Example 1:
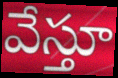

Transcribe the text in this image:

వేస్తూ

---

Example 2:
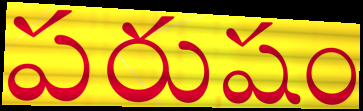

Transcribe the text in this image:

పరుషం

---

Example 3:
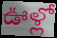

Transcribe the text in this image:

ఊళ్లో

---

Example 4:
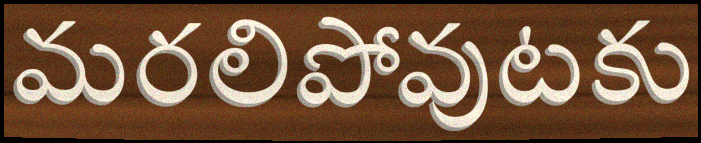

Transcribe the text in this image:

మరలిపోవుటకు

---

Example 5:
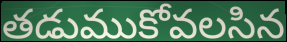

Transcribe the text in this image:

తడుముకోవలసిన